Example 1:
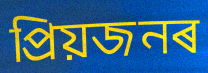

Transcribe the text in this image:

প্ৰিয়জনৰ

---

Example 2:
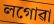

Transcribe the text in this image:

লগোৱা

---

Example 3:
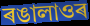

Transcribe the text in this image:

ৰঙালাওৰ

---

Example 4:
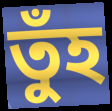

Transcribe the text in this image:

তুঁহ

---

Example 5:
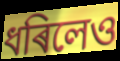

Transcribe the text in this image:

ধৰিলেও